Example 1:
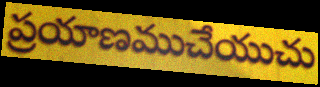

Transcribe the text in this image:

ప్రయాణముచేయుచు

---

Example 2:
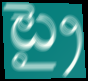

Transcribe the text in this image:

ట్రై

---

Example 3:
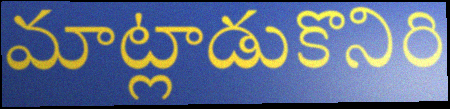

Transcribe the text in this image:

మాట్లాడుకొనిరి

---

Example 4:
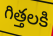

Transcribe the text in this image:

గిత్తలకి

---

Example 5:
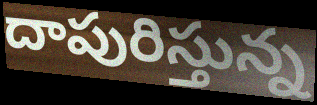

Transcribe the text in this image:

దాపురిస్తున్న